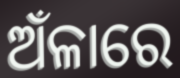
ଅଁଳାରେ